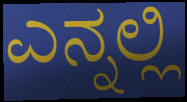
ಎನ್ನಲ್ಲಿ